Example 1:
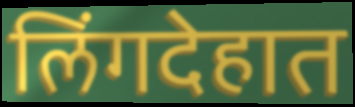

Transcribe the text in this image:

लिंगदेहात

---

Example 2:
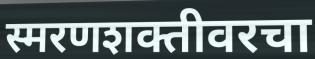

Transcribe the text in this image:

स्मरणशक्तीवरचा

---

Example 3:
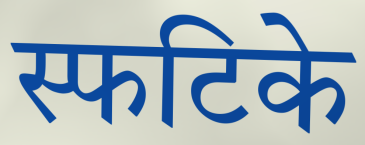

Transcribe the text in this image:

स्फटिके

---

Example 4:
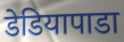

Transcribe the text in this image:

डेडियापाडा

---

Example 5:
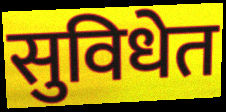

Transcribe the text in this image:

सुविधेत